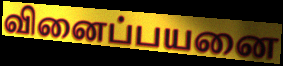
வினைப்பயனை